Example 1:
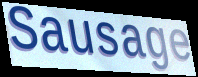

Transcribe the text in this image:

Sausage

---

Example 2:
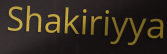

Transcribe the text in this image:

Shakiriyya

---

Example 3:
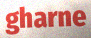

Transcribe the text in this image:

gharne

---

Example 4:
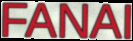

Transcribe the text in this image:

FANAI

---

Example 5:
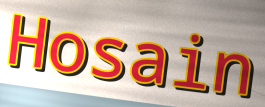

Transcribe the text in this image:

Hosain